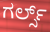
ಗರ್ಲ್ಸ್